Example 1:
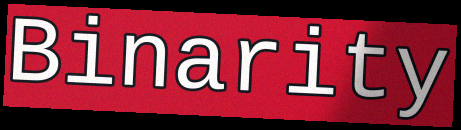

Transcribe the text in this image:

Binarity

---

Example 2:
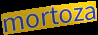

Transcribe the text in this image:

mortoza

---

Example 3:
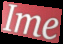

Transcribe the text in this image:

Ime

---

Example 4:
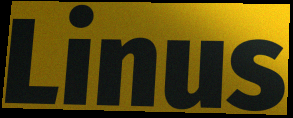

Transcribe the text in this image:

Linus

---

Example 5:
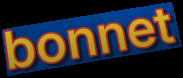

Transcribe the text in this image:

bonnet